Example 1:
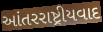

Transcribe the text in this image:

આંતરરાષ્ટ્રીયવાદ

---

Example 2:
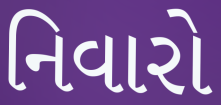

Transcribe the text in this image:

નિવારો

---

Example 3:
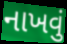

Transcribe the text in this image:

નાખવું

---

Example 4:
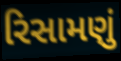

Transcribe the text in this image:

રિસામણું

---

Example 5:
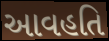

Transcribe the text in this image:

આવહતિ